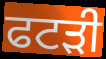
ਫਟੜੀ